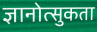
ज्ञानोत्सुकता